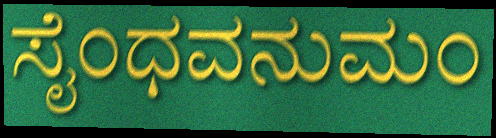
ಸೈಂಧವನುಮಂ